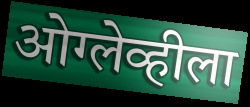
ओग्लेव्हीला